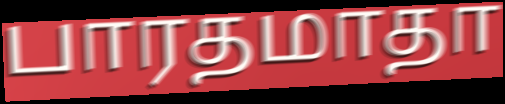
பாரதமாதா